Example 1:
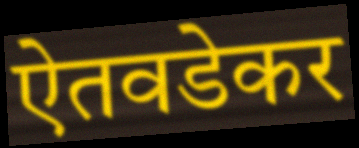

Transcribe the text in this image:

ऐतवडेकर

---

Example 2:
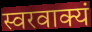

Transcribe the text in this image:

स्वरवाक्यं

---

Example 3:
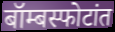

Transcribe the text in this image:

बॉम्बस्फोटांत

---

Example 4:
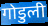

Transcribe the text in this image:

गोडुली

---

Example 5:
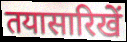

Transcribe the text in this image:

तयासारिखें